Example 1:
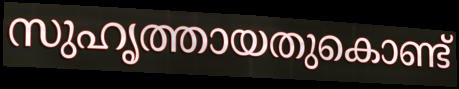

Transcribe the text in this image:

സുഹൃത്തായതുകൊണ്ട്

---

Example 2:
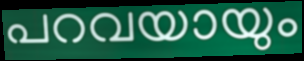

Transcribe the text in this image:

പറവയായും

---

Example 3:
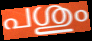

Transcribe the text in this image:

പശും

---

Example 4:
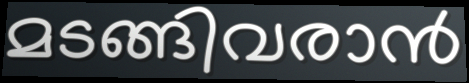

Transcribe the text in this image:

മടങ്ങിവരാൻ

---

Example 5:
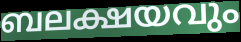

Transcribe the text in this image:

ബലക്ഷയവും